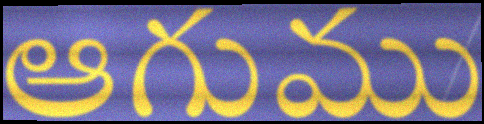
ఆగుము